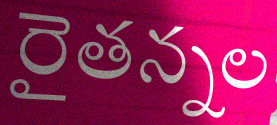
రైతన్నల